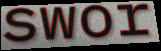
swor